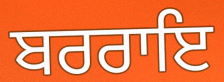
ਬਰਰਾਇ